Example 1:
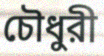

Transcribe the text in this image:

চৌধুরী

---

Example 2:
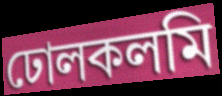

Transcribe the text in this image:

ঢোলকলমি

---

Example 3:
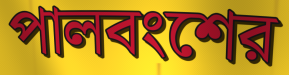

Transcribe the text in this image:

পালবংশের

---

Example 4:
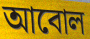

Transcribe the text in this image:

আবোল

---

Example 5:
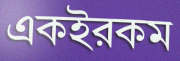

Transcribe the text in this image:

একইরকম